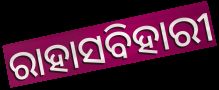
ରାହାସବିହାରୀ